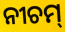
ନୀଚମ୍